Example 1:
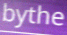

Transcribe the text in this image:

bythe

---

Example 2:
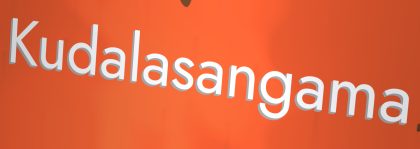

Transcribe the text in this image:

Kudalasangama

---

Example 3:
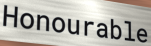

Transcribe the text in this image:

Honourable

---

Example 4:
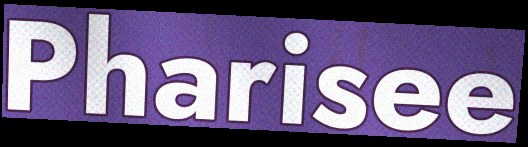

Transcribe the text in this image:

Pharisee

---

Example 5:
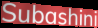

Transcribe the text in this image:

Subashini